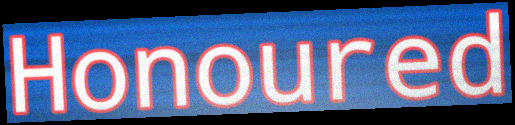
Honoured